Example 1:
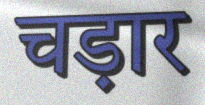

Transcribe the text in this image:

चड़ार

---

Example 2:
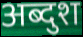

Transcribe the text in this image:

अब्दुश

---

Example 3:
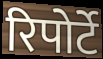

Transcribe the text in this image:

रिपोर्टे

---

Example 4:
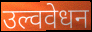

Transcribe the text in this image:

उल्ववेधन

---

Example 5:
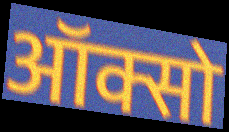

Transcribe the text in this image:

ऑक्सो